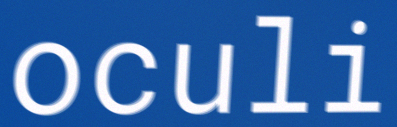
oculi